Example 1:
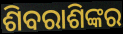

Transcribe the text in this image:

ଶିବରାଶିଙ୍କର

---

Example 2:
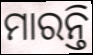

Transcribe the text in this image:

ମାରନ୍ତି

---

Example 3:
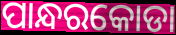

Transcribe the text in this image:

ପାନ୍ଧରକୋଡା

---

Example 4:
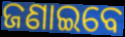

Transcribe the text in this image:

ଜଣାଇବେ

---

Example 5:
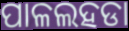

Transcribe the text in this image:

ପାଳଲହଡା